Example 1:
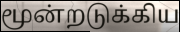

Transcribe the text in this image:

மூன்றடுக்கிய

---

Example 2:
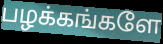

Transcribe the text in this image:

பழக்கங்களே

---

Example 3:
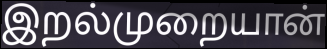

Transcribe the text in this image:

இறல்முறையான்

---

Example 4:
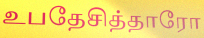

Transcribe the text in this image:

உபதேசித்தாரோ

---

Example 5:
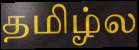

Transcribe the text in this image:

தமிழ்ல